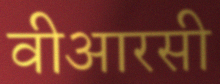
वीआरसी